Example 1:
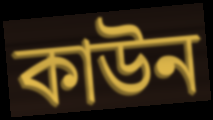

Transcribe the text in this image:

কাউন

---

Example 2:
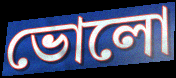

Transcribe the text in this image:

ভোলো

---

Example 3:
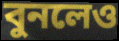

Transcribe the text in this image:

বুনলেও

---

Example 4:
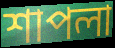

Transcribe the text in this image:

শাপলা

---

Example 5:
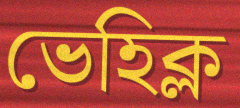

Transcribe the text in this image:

ভেহিক্ল